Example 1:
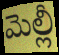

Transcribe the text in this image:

మెల్లీ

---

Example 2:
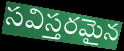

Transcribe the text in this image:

సవిస్తరమైన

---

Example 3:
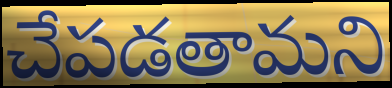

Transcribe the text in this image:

చేపడతామని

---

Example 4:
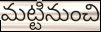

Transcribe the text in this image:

మట్టినుంచి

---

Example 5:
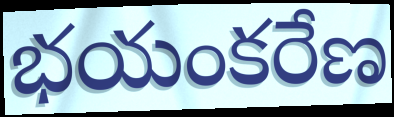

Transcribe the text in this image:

భయంకరేణ